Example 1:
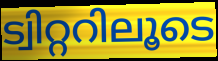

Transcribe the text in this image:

ട്വിറ്ററിലൂടെ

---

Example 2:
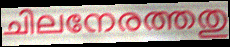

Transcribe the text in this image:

ചിലനേരത്തതു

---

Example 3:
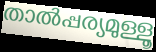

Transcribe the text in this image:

താൽപ്പര്യമുള്ളൂ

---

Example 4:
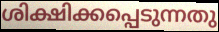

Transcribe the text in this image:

ശിക്ഷിക്കപ്പെടുന്നതു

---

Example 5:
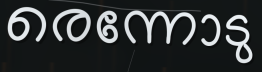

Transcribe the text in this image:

രെന്നോടു